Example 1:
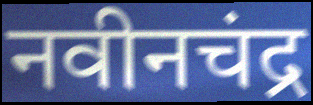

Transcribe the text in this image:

नवीनचंद्र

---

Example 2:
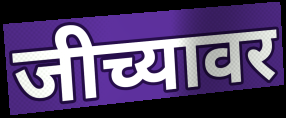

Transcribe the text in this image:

जीच्यावर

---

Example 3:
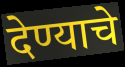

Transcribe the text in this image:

देण्याचे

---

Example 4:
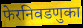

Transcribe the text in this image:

फेरनिवडणुका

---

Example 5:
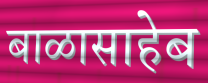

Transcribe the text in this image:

बाळासाहेब